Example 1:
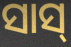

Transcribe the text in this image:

ସାସ୍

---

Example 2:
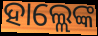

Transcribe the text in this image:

ହାଲ୍ଲେଙ୍କ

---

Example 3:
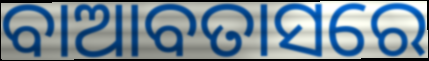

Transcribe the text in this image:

ବାଆବତାସରେ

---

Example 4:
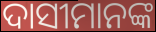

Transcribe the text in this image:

ଦାସୀମାନଙ୍କ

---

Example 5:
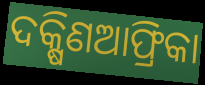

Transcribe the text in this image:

ଦକ୍ଷିଣଆଫ୍ରିକା